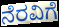
ನೆರವಿಗೆ